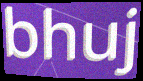
bhuj